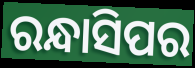
ରନ୍ଧାସିପର